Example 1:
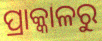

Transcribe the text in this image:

ପ୍ରାକ୍କାଳରୁ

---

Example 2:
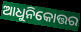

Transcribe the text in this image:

ଆଧୁନିକୋତ୍ତର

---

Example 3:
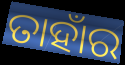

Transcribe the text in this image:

ତାହାଁର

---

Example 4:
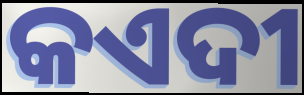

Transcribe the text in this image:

କଏଦୀ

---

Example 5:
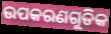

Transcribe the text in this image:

ଉପକରଣଗୁଡିକ